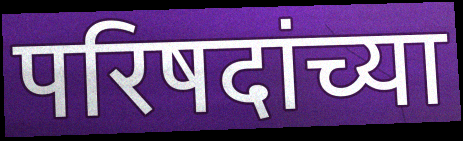
परिषदांच्या